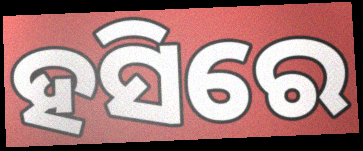
ହସିରେ